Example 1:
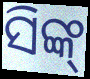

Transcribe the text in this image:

ସିଙ୍କ୍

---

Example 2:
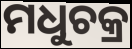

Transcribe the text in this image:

ମଧୁଚକ୍ର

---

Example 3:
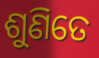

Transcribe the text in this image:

ଶୁଣିତେ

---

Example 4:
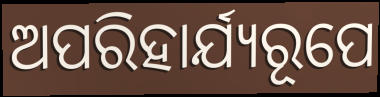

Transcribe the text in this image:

ଅପରିହାର୍ଯ୍ୟରୂପେ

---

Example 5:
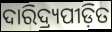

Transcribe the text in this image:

ଦାରିଦ୍ର୍ୟପୀଡ଼ିତ